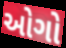
ઓગો